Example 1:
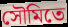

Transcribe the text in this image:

সৌমিতে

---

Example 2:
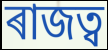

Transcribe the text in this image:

ৰাজত্ব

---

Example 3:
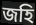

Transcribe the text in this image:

জহি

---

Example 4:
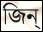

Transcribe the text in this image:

জিন্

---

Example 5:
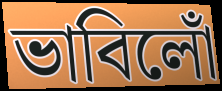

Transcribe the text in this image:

ভাবিলোঁ